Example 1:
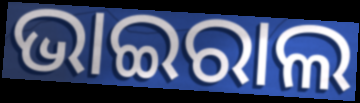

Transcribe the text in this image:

ଭାଇରାଲ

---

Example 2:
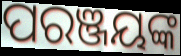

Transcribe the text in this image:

ପରଞ୍ଜୟଙ୍କ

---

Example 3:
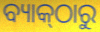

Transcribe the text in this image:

ବ୍ୟାକ୍‌ଠାରୁ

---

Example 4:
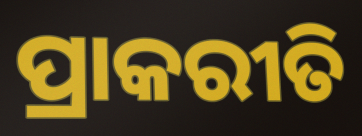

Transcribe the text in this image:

ପ୍ରାକରୀତି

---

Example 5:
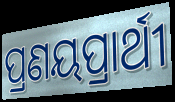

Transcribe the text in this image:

ପ୍ରଣୟପ୍ରାର୍ଥୀ